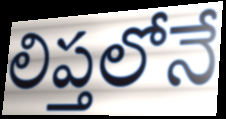
లిప్తలోనే